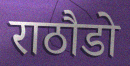
राठौडो